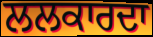
ਲਲਕਾਰਦਾ